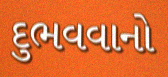
દુભવવાનો